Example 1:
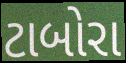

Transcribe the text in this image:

ટાબોરા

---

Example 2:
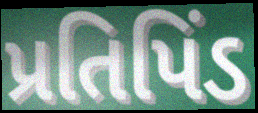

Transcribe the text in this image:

પ્રતિપિંડ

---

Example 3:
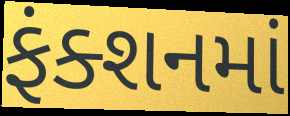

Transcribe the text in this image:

ફંક્શનમાં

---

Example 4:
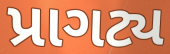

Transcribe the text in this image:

પ્રાગટ્ય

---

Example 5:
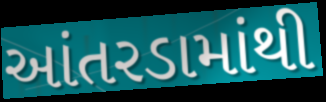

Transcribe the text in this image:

આંતરડામાંથી